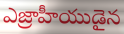
ఎజ్రాహీయుడైన